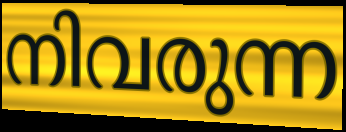
നിവരുന്ന